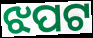
ଝପଟ